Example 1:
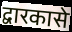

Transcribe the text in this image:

द्वारकासे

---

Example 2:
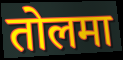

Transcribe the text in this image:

तोलमा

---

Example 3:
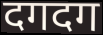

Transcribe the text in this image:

दगदग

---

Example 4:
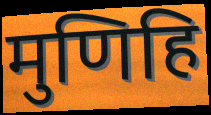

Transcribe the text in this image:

मुणिहि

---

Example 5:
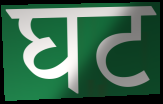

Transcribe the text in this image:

घट